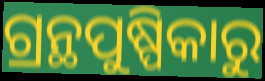
ଗ୍ରନ୍ଥପୁଷ୍ପିକାରୁ